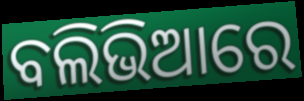
ବଲିଭିଆରେ